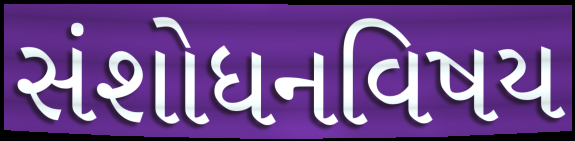
સંશોધનવિષય